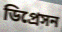
ডিপ্রেসন